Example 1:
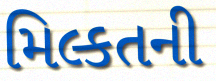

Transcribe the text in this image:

મિલ્કતની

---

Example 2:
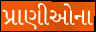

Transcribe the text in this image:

પ્રાણીઓના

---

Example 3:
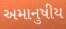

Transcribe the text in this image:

અમાનુષીય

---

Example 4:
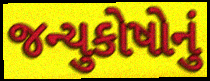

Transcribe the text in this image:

જન્યુકોષોનું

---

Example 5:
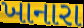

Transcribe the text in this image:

ખાનારા